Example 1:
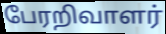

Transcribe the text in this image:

பேரறிவாளர்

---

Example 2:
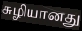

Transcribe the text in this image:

சுழியானது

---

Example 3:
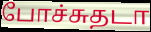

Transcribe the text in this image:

போச்சுதடா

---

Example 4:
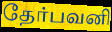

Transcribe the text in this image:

தேர்பவனி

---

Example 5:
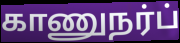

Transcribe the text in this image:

காணுநர்ப்